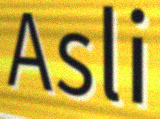
Asli